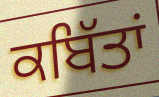
ਕਬਿੱਤਾਂ